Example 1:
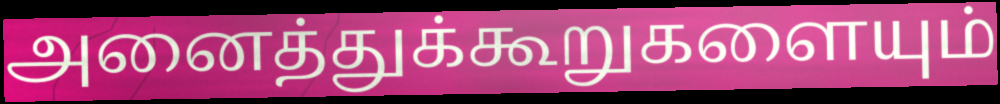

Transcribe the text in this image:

அனைத்துக்கூறுகளையும்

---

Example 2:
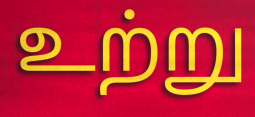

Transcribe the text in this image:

உற்று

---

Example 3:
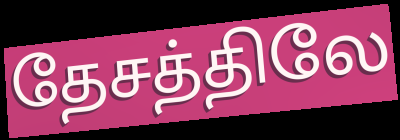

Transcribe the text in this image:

தேசத்திலே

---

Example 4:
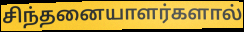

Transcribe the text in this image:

சிந்தனையாளர்களால்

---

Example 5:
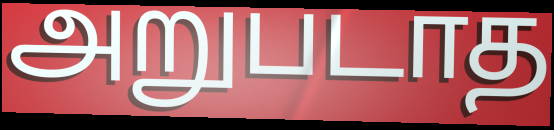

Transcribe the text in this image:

அறுபடாத